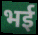
भई